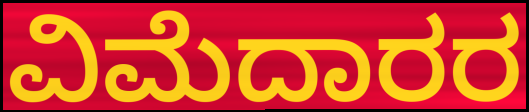
ವಿಮೆದಾರರ